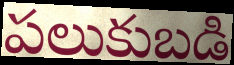
పలుకుబడి